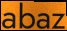
abaz